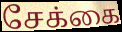
சேக்கை